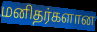
மனிதர்களான